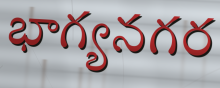
భాగ్యనగర